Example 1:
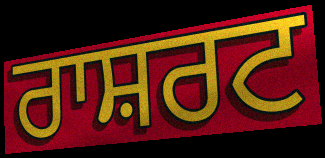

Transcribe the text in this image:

ਰਾਸ਼ਰਟ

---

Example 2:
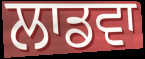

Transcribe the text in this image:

ਲਾਡਵਾ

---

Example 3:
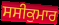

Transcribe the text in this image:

ਸਸੀਕੁਮਾਰ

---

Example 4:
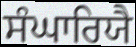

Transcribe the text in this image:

ਸੰਘਾਰਿਯੈ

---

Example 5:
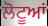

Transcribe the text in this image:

ਲੋਟੂਆਂ